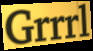
Grrrl